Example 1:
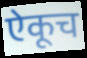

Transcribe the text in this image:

ऐकूच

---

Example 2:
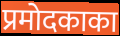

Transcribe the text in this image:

प्रमोदकाका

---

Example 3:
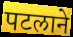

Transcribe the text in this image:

पटलाने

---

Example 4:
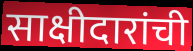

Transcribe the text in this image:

साक्षीदारांची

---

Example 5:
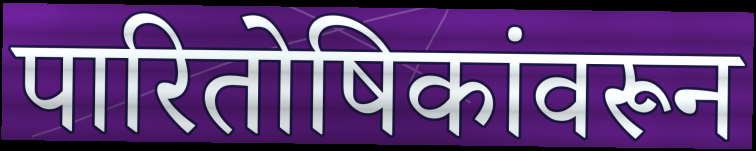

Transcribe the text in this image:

पारितोषिकांवरून